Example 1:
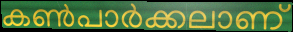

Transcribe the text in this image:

കൺപാർക്കലാണ്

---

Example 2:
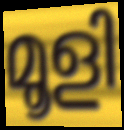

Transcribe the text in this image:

മൂളി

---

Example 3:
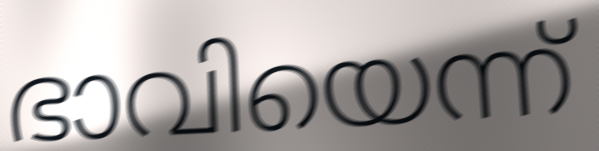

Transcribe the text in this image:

ഭാവിയെന്ന്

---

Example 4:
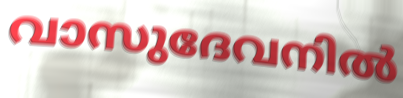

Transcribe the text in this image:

വാസുദേവനിൽ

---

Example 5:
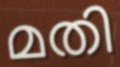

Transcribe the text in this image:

മതി